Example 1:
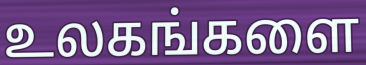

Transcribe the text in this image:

உலகங்களை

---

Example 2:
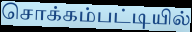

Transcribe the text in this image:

சொக்கம்பட்டியில்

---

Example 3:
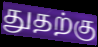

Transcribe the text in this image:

துதற்கு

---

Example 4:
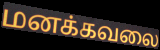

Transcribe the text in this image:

மனக்கவலை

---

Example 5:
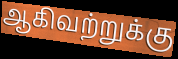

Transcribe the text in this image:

ஆகிவற்றுக்கு